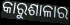
କାରୁଶାଳାର